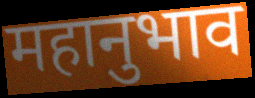
महानुभाव